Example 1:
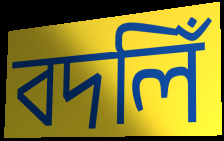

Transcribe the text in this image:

বদলিঁ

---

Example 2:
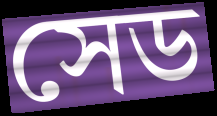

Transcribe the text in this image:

সেড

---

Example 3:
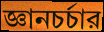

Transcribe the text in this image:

জ্ঞানচর্চার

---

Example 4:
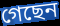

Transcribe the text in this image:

গেছেন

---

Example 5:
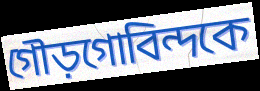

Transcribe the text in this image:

গৌড়গোবিন্দকে